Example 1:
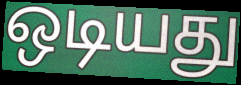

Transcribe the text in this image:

ஒடியது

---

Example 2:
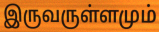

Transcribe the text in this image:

இருவருள்ளமும்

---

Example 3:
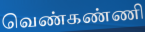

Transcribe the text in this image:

வெண்கண்ணி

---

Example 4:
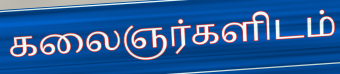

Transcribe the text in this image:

கலைஞர்களிடம்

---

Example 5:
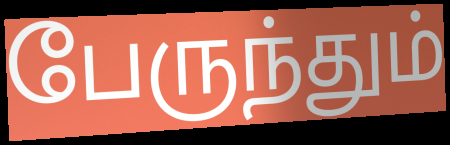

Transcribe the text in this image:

பேருந்தும்